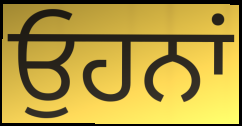
ਓੁਹਨਾਂ